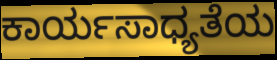
ಕಾರ್ಯಸಾಧ್ಯತೆಯ